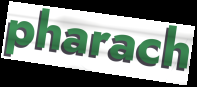
pharach